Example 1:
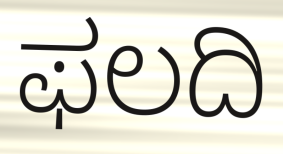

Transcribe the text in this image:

ಫಲದಿ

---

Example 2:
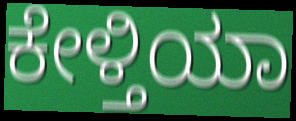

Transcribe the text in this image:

ಕೇಳ್ತಿಯಾ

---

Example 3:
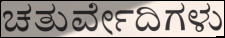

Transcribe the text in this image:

ಚತುರ್ವೇದಿಗಳು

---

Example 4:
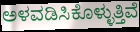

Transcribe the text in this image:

ಅಳವಡಿಸಿಕೊಳ್ಳುತ್ತಿವೆ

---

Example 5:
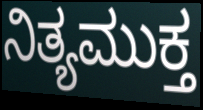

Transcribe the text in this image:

ನಿತ್ಯಮುಕ್ತ